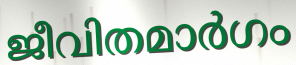
ജീവിതമാർഗം